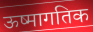
ऊष्मागतिक